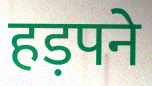
हड़पने